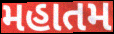
મહાતમ